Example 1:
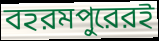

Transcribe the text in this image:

বহরমপুরেরই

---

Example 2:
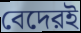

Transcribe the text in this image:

বেদেরই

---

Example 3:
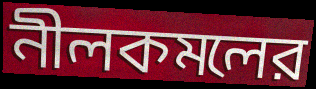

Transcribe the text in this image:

নীলকমলের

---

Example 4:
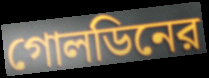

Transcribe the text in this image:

গোলডিনের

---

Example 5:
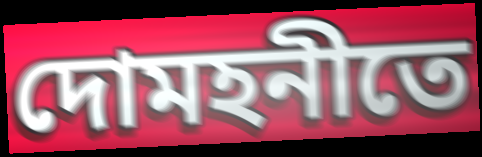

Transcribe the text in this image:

দোমহনীতে